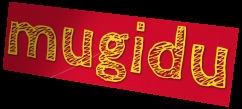
mugidu